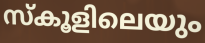
സ്കൂളിലെയും